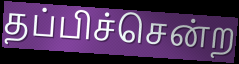
தப்பிச்சென்ற